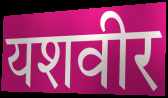
यशवीर